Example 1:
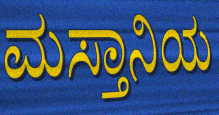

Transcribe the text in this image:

ಮಸ್ತಾನಿಯ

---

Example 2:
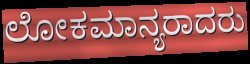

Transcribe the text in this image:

ಲೋಕಮಾನ್ಯರಾದರು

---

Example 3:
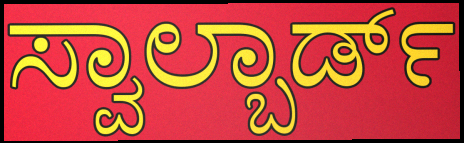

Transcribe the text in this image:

ಸ್ವಾಲ್ಬಾರ್ಡ್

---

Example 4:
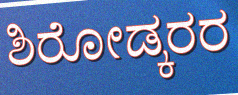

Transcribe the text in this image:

ಶಿರೋಡ್ಕರರ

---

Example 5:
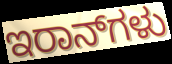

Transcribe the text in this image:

ಇರಾನ್‌ಗಳು